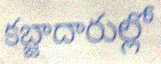
కబ్జాదారుల్లో